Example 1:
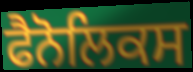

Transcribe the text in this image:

ਫੈਨੋਲਿਕਸ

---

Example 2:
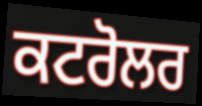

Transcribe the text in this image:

ਕਟਰੋਲਰ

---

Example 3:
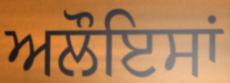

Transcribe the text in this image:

ਅਲੌਇਸਾਂ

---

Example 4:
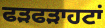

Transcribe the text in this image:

ਫੜਫੜਾਹਟਾਂ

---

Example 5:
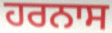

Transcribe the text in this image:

ਹਰਨਾਸ